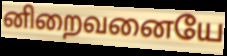
னிறைவனையே